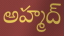
అహ్మద్